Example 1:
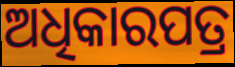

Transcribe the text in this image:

ଅଧିକାରପତ୍ର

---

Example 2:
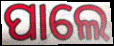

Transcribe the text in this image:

ପାଲେ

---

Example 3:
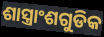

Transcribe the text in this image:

ଶାସ୍ତ୍ରାଂଶଗୁଡିକ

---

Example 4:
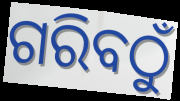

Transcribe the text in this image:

ଗରିବଠୁଁ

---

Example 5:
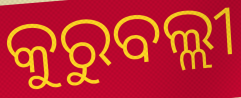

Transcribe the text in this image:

କୁରୁବଲ୍ଲୀ